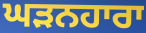
ਘੜਨਹਾਰਾ